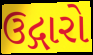
ઉદ્ગારો